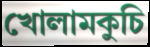
খোলামকুচি